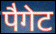
पैगेट